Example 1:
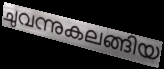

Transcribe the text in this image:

ചുവന്നുകലങ്ങിയ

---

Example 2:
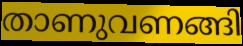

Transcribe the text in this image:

താണുവണങ്ങി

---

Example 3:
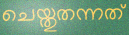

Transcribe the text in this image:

ചെയ്തുതന്നത്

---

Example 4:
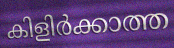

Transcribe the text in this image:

കിളിർക്കാത്ത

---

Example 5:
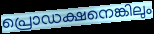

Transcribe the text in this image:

പ്രൊഡക്ഷനെങ്കിലും